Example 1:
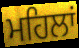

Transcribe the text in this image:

ਮਹਿਲਾਂ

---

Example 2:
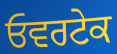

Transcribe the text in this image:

ਓਵਰਟੇਕ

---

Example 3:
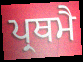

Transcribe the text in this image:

ਪ੍ਰਥਮੈ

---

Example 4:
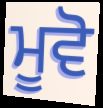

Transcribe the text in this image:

ਮੂਵੋ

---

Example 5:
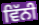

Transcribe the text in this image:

ਵਿੱਨੀ